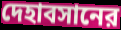
দেহাবসানের